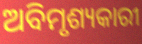
ଅବିମୃଶ୍ୟକାରୀ